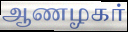
ஆணழகர்